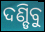
ଦଣ୍ଡିବୁ